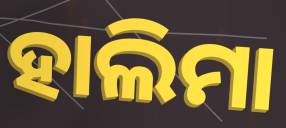
ହାଲିମା